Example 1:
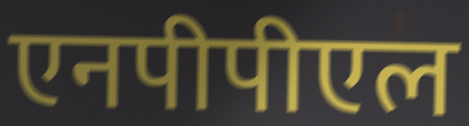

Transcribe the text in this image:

एनपीपीएल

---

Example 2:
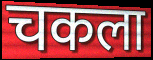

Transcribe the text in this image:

चकला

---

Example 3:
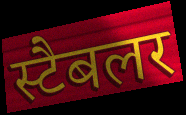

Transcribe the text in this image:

स्टैबलर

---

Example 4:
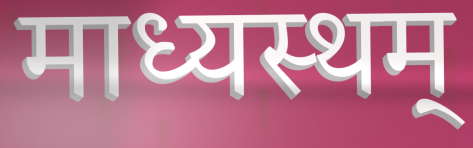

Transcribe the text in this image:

माध्यस्थम्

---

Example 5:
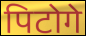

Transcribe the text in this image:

पिटोगे